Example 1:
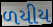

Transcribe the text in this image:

ળયીય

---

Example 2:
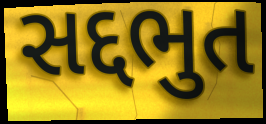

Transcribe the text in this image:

સદ્દભુત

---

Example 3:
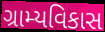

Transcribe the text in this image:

ગ્રામ્યવિકાસ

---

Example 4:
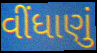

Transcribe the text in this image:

વીંધાણું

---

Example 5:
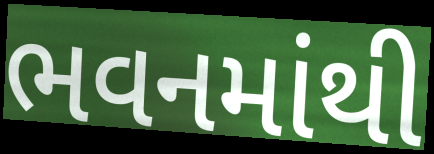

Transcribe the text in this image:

ભવનમાંથી